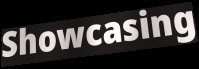
Showcasing